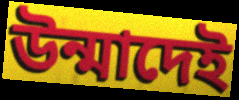
উন্মাদেই